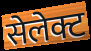
सेलेक्ट